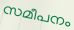
സമീപനം